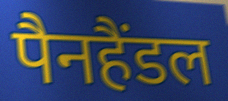
पैनहैंडल